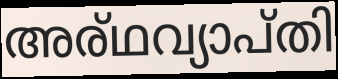
അര്ഥവ്യാപ്തി